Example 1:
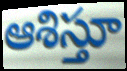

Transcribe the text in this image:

ఆశిస్తూ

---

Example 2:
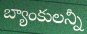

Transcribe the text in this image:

బ్యాంకులన్నీ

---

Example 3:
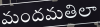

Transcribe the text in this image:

మందమతిలా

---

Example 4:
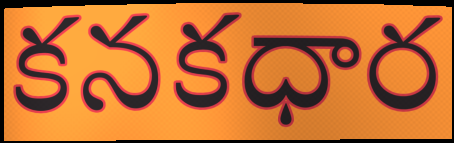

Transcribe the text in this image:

కనకధార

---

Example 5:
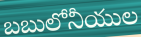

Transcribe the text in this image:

బబులోనీయుల